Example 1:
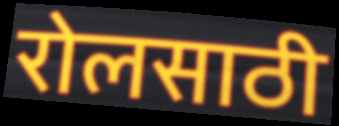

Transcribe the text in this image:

रोलसाठी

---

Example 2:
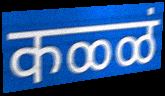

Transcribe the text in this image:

कळ्ळं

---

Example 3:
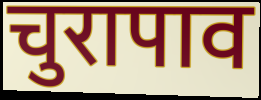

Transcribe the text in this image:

चुरापाव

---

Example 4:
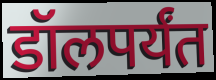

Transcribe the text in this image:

डॉलपर्यंत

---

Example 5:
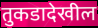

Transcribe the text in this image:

तुकडादेखील